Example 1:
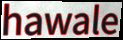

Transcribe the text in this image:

hawale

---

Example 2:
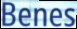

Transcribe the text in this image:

Benes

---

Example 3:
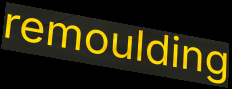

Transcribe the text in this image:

remoulding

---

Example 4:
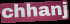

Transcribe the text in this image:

chhanj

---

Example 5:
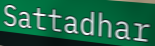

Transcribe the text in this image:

Sattadhar